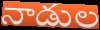
నాడుల